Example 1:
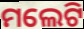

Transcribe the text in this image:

ମଲେଟି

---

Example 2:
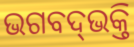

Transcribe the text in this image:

ଭଗବଦ୍‌ଭକ୍ତି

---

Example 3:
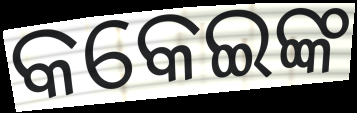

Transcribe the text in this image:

କକେଇଙ୍କ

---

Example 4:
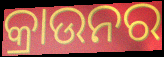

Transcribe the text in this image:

କ୍ରାଉନର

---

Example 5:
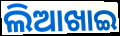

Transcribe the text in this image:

ଲିଆଖାଇ